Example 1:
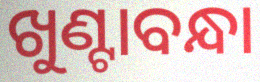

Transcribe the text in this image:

ଖୁଣ୍ଟାବନ୍ଧା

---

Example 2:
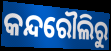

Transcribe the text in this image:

କନ୍ଦରୌଲିରୁ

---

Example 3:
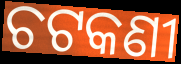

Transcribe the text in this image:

ଚଟକଣୀ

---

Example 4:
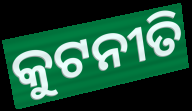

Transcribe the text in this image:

କୁଟନୀତି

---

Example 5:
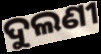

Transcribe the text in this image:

ଦୁଲଣୀ